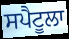
ਸਪੈਟੂਲਾ